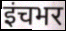
इंचभर